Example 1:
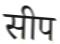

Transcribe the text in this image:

सीप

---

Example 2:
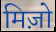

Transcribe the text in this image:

मिज़ो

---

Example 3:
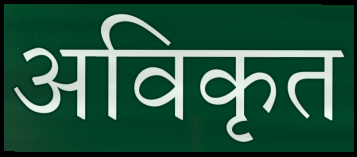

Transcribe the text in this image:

अविकृत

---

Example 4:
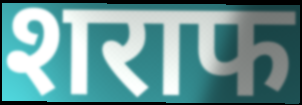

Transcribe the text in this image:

शराफ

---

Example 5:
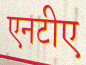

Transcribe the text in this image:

एनटीए